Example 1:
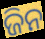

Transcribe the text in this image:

ଜିନ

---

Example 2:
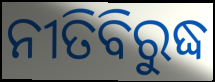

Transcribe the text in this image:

ନୀତିବିରୁଦ୍ଧ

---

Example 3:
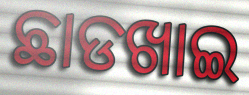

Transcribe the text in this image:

ଛାଡଖାଇ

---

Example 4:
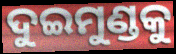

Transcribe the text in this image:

ଦୁଇମୁଣ୍ଡକୁ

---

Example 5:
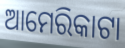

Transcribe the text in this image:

ଆମେରିକାଟା